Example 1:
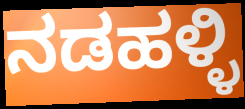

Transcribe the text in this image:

ನಡಹಳ್ಳಿ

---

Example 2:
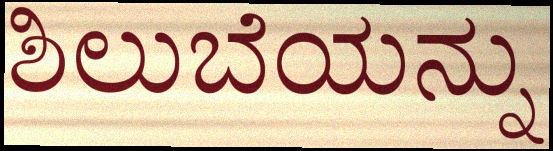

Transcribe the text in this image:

ಶಿಲುಬೆಯನ್ನು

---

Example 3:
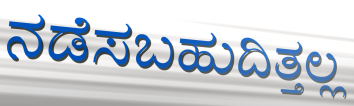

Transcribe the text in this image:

ನಡೆಸಬಹುದಿತ್ತಲ್ಲ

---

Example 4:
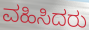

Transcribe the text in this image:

ವಹಿಸಿದರು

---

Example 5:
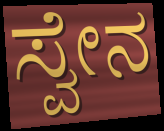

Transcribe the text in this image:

ಸ್ವೇನ